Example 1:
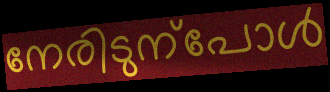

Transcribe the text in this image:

നേരിടുന്പോൾ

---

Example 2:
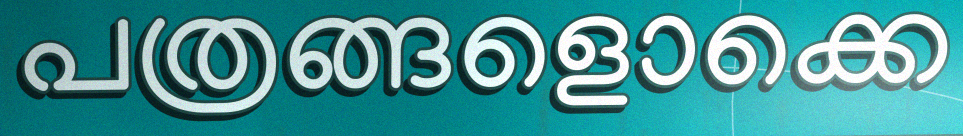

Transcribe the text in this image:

പത്രങ്ങളൊക്കെ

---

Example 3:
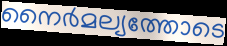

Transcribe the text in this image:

നൈർമല്യത്തോടെ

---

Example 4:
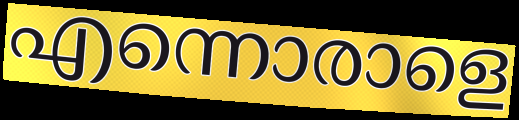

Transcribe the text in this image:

എന്നൊരാളെ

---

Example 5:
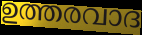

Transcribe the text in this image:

ഉത്തരവാദ